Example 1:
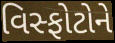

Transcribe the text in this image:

વિસ્ફોટોને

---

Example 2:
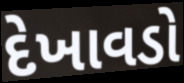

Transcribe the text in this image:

દેખાવડો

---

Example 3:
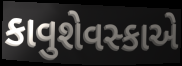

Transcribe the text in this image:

કાવુશેવસ્કાએ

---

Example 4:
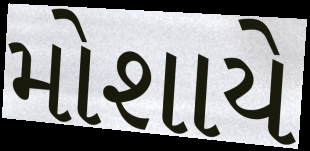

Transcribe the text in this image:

મોશાયે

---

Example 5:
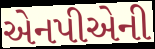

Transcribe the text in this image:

એનપીએની